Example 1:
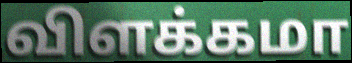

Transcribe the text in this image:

விளக்கமா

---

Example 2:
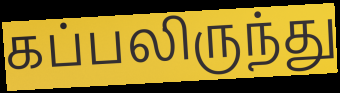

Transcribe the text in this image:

கப்பலிருந்து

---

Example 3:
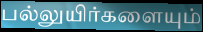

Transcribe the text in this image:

பல்லுயிர்களையும்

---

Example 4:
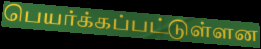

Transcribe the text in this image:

பெயர்க்கப்பட்டுள்ளன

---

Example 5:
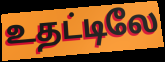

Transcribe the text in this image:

உதட்டிலே